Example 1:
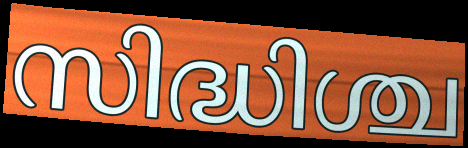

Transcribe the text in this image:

സിദ്ധിശ്ച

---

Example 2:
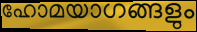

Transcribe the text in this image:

ഹോമയാഗങ്ങളും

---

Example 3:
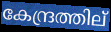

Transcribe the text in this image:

കേന്ദ്രത്തില്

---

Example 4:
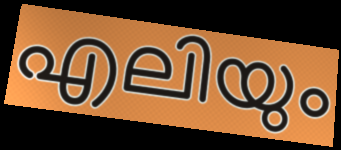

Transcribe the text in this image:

എലിയും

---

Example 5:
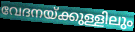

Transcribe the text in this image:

വേദനയ്ക്കുള്ളിലും